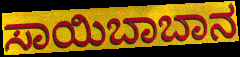
ಸಾಯಿಬಾಬಾನ